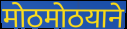
मोठमोठयाने